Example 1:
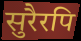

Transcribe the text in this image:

सुरैरपि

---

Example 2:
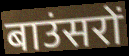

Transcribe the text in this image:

बाउंसरों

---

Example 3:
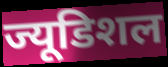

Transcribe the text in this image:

ज्यूडिशल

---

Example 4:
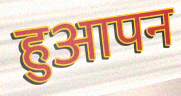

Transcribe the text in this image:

हुआपन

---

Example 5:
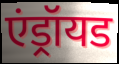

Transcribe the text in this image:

एंड्रॉयड